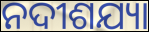
ନଦୀଶଯ୍ୟା